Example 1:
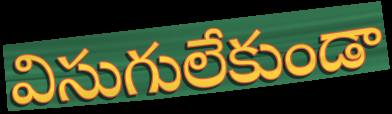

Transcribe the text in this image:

విసుగులేకుండా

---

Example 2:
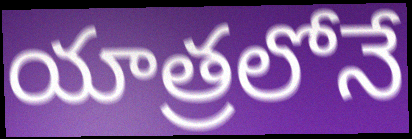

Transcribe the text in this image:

యాత్రలోనే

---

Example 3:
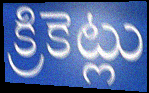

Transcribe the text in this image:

క్రికెట్లు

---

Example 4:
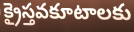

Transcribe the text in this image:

క్రైస్తవకూటాలకు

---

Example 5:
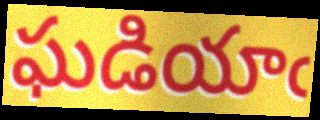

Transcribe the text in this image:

ఘడియాఁ